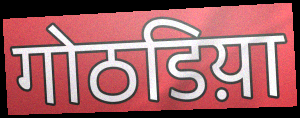
गोठडिय़ा